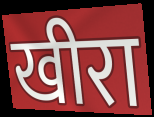
खीरा